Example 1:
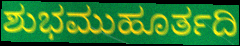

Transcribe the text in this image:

ಶುಭಮುಹೂರ್ತದಿ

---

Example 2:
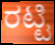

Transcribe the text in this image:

ರಟ್ಟಿ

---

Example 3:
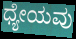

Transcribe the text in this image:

ಧ್ಯೇಯವು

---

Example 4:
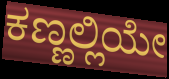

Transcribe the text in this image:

ಕಣ್ಣಲ್ಲಿಯೇ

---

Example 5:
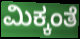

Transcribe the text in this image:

ಮಿಕ್ಕಂತೆ